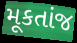
મૂકતાંજ